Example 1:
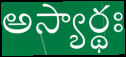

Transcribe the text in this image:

అస్యార్థః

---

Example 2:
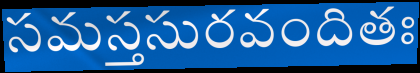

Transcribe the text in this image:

సమస్తసురవందితః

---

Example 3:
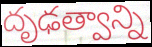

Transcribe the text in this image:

దృఢత్వాన్ని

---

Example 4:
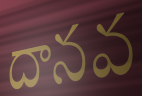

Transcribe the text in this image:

దానవ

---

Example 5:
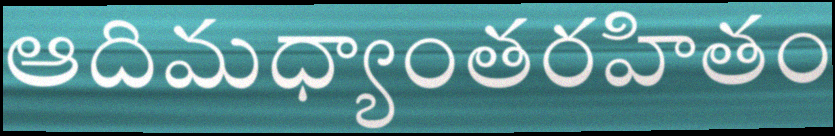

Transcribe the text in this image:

ఆదిమధ్యాంతరహితం